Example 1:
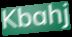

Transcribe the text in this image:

Kbahj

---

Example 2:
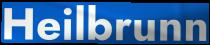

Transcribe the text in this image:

Heilbrunn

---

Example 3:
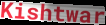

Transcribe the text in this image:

Kishtwar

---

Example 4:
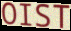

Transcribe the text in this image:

OIST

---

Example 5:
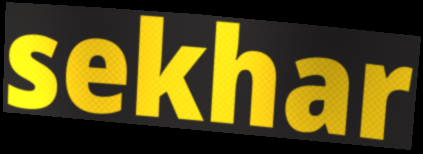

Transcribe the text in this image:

sekhar